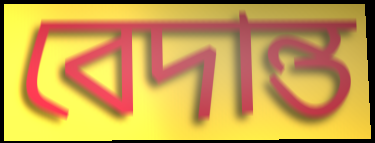
বেদান্ত